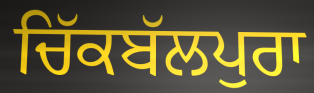
ਚਿੱਕਬੱਲਪੁਰਾ